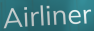
Airliner